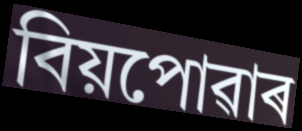
বিয়পোৱাৰ